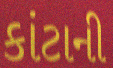
કાંટાની